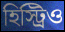
হিস্ট্রিও